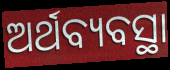
ଅର୍ଥବ୍ୟବସ୍ଥା